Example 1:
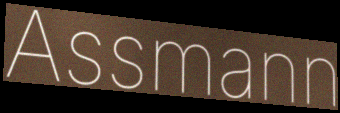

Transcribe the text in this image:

Assmann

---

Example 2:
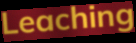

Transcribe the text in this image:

Leaching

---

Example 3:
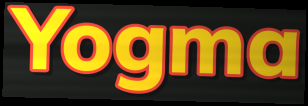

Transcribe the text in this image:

Yogma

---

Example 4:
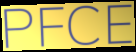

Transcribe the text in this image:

PFCE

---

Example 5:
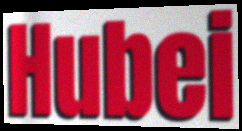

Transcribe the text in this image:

Hubei